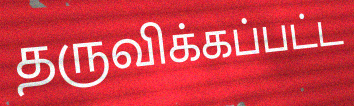
தருவிக்கப்பட்ட